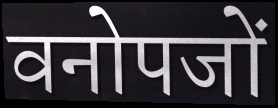
वनोपजों